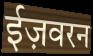
ईज़वरन